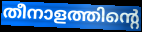
തീനാളത്തിന്റെ